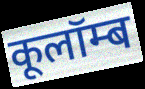
कूलॉम्ब